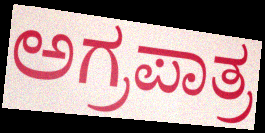
ಅಗ್ರಪಾತ್ರ